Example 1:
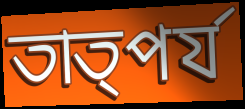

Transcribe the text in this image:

তাত্পর্য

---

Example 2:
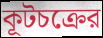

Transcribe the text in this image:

কূটচক্রের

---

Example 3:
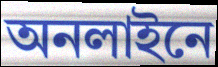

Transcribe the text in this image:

অনলাইনে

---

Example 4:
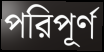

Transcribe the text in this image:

পরিপূর্ণ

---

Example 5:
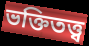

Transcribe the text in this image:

ভক্তিতত্ত্ব